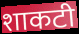
शाकटी